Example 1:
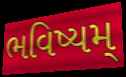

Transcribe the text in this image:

ભવિષ્યમ્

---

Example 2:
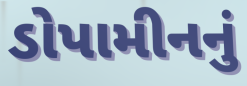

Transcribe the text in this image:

ડોપામીનનું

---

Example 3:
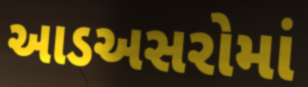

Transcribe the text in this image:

આડઅસરોમાં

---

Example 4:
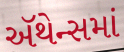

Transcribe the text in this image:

ઍથેન્સમાં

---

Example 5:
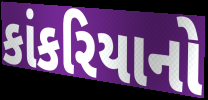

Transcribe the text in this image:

કાંકરિયાનો